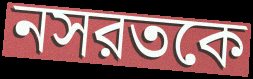
নসরতকে